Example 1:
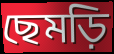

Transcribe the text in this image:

ছেমড়ি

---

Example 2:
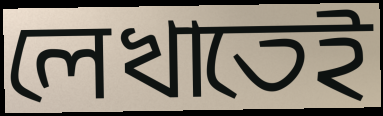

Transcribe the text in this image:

লেখাতেই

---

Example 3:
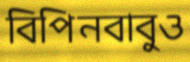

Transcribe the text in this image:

বিপিনবাবুও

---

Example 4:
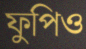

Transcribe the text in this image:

ফুপিও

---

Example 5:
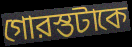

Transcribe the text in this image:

গোরস্তটাকে